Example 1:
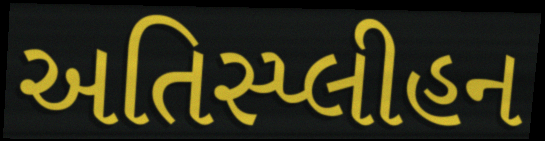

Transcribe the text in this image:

અતિસ્પ્લીહન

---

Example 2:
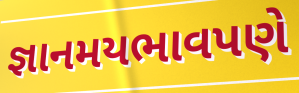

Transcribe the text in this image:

જ્ઞાનમયભાવપણે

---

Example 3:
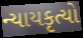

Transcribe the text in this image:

ન્યાયકૃત્યો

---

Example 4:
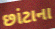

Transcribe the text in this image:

છાંટાના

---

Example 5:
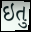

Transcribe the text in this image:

ઇતુ